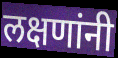
लक्षणांनी